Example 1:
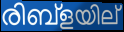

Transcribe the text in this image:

രിബ്ളയില്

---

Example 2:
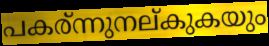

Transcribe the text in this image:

പകര്ന്നുനല്കുകയും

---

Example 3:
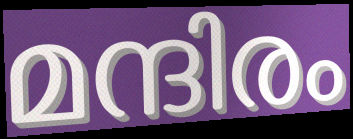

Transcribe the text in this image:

മന്ദിരം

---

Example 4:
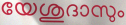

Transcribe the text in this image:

യേശുദാസും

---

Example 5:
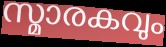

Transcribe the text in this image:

സ്മാരകവും